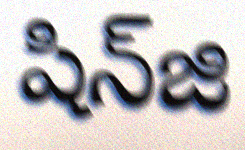
షిన్‌జి